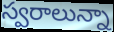
స్వరాలున్నా